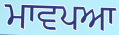
ਮਾਵਪਆ